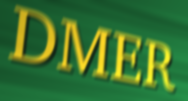
DMER